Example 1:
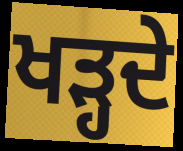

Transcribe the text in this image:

ਖੜ੍ਹਦੇ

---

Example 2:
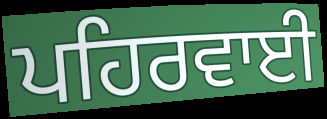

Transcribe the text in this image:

ਪਹਿਰਵਾਈ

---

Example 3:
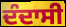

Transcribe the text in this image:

ਦੰਦਾਸੀ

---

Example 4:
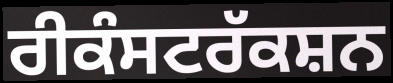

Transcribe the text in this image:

ਰੀਕੰਸਟਰੱਕਸ਼ਨ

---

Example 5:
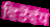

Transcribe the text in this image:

ਵਿਤੋਂਵੱਧ